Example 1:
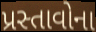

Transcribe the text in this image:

પ્રસ્તાવોના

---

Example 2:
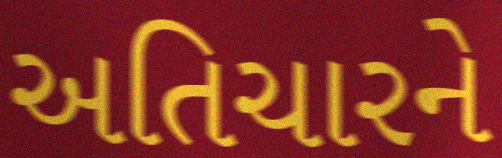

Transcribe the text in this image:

અતિચારને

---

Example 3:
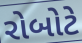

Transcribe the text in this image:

રોબોટે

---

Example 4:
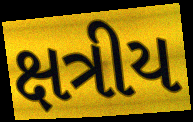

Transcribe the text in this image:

ક્ષત્રીય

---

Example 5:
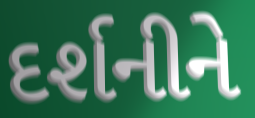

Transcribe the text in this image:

દર્શનીને